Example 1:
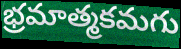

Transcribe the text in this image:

భ్రమాత్మకమగు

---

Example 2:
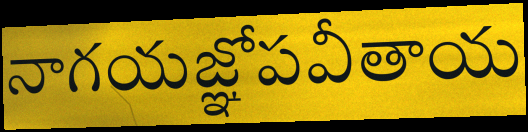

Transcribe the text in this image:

నాగయజ్ఞోపవీతాయ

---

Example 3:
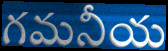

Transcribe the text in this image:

గమనీయ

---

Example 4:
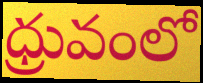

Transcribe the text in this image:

ధ్రువంలో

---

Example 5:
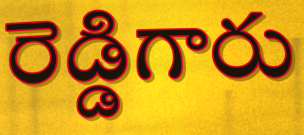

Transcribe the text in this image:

రెడ్డిగారు